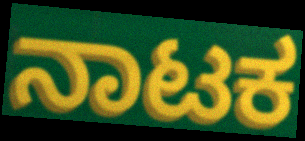
ನಾಟಕ